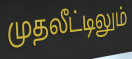
முதலீட்டிலும்